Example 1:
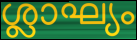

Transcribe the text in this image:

ശ്ലാഘ്യം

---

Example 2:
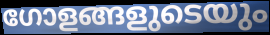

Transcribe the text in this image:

ഗോളങ്ങളുടെയും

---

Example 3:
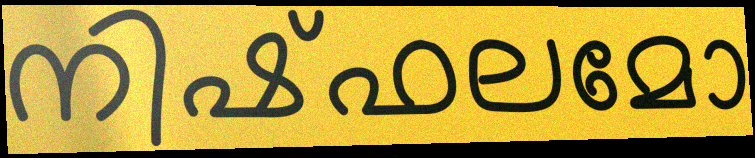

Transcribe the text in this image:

നിഷ്ഫലമോ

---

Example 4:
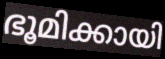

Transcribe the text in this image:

ഭൂമിക്കായി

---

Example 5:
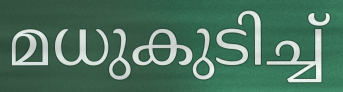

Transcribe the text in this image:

മധുകുടിച്ച്